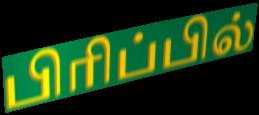
பிரிப்பில்